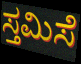
ಸ್ತಮಿಸೆ